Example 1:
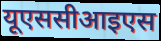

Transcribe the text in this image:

यूएससीआइएस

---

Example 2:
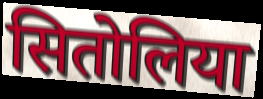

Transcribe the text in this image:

सितोलिया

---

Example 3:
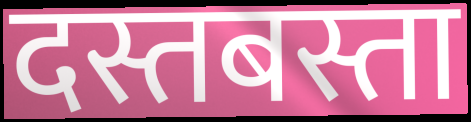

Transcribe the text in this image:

दस्तबस्ता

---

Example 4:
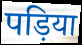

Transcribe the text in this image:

पड़िया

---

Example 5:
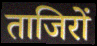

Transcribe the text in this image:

ताजिरों